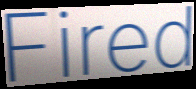
Fired